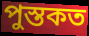
পুস্তকত